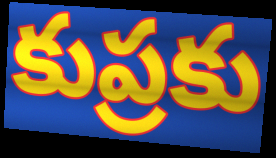
కుప్రకు